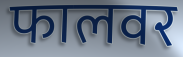
फालवर